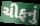
ચીફનું